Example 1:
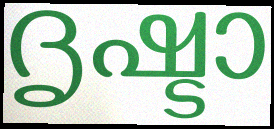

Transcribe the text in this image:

ദൃഷ്ടാ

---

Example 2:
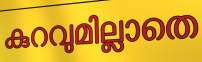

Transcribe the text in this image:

കുറവുമില്ലാതെ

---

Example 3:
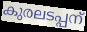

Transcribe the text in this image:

കുരലടപ്പന്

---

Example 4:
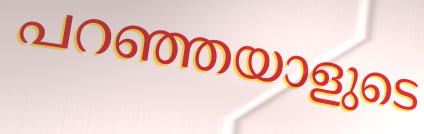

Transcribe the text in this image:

പറഞ്ഞയാളുടെ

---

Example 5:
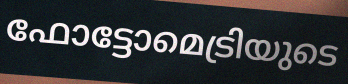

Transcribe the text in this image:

ഫോട്ടോമെട്രിയുടെ